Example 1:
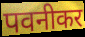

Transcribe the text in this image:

पवनीकर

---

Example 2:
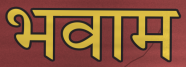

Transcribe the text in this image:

भवाम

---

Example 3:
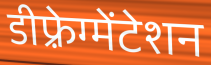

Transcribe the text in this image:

डीफ़्रेग्मेंटेशन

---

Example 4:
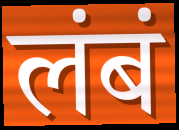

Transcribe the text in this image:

लंबं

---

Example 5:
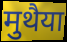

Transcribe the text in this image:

मुथैया